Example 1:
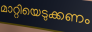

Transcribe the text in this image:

മാറ്റിയെടുക്കണം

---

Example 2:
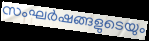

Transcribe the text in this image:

സംഘർഷങ്ങളുടെയും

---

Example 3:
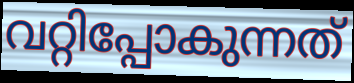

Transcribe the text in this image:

വറ്റിപ്പോകുന്നത്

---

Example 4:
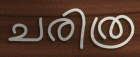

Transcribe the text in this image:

ചരിത്ര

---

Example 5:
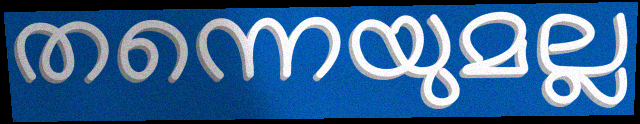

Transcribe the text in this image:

തന്നെയുമല്ല